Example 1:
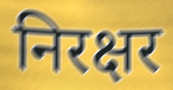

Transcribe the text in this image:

निरक्षर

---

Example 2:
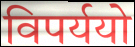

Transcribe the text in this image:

विपर्ययो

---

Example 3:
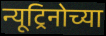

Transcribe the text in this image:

न्यूट्रिनोच्या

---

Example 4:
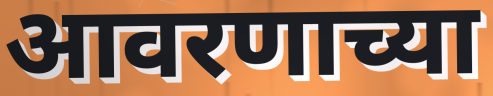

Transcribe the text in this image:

आवरणाच्या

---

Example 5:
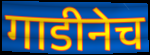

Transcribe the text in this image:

गाडीनेच